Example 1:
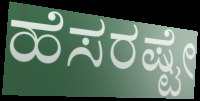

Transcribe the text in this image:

ಹೆಸರಷ್ಟೇ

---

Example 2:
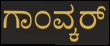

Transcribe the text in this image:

ಗಾಂವ್ಕರ್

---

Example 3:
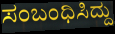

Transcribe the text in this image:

ಸಂಬಂಧಿಸಿದ್ದು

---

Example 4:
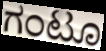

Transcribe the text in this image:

ಗಂಟೂ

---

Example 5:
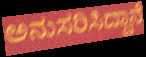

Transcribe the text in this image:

ಅನುಸರಿಸಿದ್ದಾನೆ